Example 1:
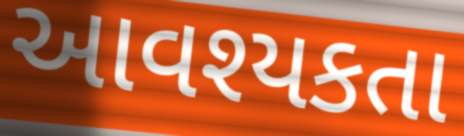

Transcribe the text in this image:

આવશ્યકતા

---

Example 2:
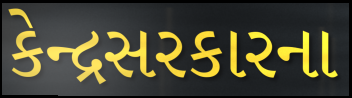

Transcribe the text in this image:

કેન્દ્રસરકારના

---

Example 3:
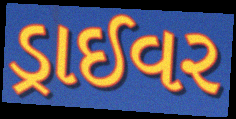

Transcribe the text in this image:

ડ્રાઈવર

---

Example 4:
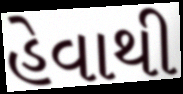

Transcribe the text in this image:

હેવાથી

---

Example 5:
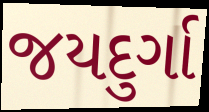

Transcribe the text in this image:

જયદુર્ગા